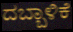
ದಬ್ಬಾಳಿಕೆ